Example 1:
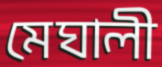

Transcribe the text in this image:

মেঘালী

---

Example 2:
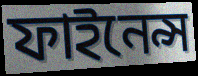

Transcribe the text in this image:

ফাইনেন্স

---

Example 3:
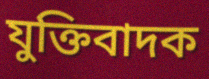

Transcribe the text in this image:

যুক্তিবাদক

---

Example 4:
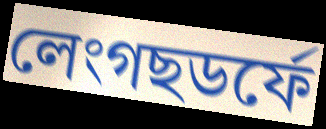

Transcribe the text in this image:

লেংগছডৰ্ফে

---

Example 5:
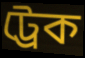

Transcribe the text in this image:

ট্ৰেক